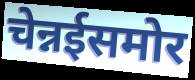
चेन्नईसमोर